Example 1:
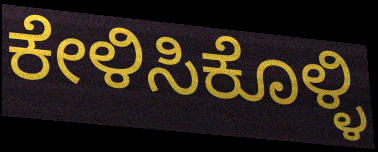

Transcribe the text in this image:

ಕೇಳಿಸಿಕೊಳ್ಳಿ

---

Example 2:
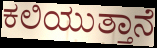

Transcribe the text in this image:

ಕಲಿಯುತ್ತಾನೆ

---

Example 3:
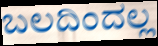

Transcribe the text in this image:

ಬಲದಿಂದಲ್ಲ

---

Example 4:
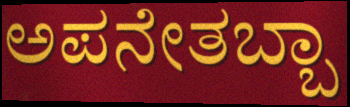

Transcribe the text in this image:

ಅಪನೇತಬ್ಬಾ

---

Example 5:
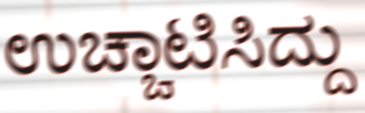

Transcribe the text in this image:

ಉಚ್ಚಾಟಿಸಿದ್ದು